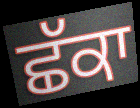
ਛੱਕਾ